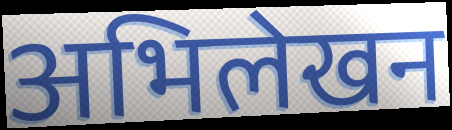
अभिलेखन